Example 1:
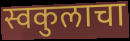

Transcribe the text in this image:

स्वकुलाचा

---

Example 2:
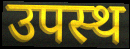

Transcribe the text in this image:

उपस्थ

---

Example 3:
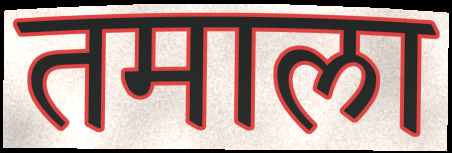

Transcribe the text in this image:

तमाला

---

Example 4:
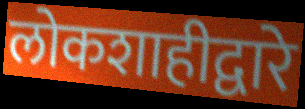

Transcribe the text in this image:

लोकशाहीद्वारे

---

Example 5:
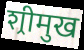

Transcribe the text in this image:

श्रीमुख